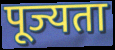
पूज्यता